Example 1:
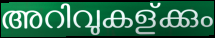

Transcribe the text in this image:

അറിവുകള്ക്കും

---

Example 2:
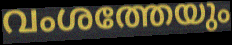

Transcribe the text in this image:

വംശത്തേയും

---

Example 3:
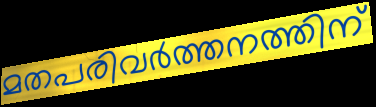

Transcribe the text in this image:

മതപരിവർത്തനത്തിന്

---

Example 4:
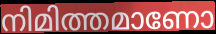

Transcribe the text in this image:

നിമിത്തമാണോ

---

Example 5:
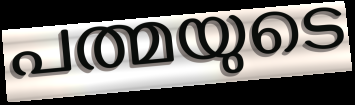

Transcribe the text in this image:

പത്മയുടെ